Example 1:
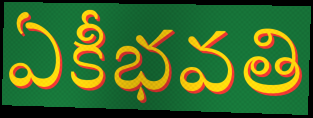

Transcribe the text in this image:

ఏకీభవతి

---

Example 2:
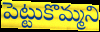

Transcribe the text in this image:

పెట్టుకొమ్మని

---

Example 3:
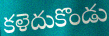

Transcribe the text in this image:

కళెదుకొండు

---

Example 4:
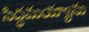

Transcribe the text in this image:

సిద్ధమయ్యాను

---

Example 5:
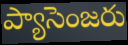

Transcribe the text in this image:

ప్యాసెంజరు